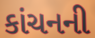
કાંચનની